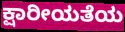
ಕ್ಷಾರೀಯತೆಯ